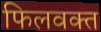
फिलवक्‍त